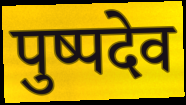
पुष्पदेव